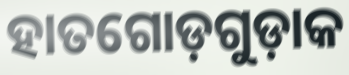
ହାତଗୋଡ଼ଗୁଡ଼ାକ